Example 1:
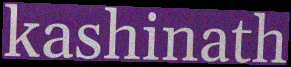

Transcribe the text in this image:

kashinath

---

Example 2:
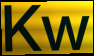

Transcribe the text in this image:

Kw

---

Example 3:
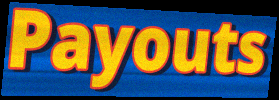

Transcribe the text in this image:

Payouts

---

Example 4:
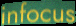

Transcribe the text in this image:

infocus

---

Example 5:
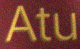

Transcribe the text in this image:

Atu